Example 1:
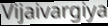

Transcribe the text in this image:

Vijaivargiya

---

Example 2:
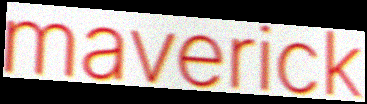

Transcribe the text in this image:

maverick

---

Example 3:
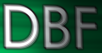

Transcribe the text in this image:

DBF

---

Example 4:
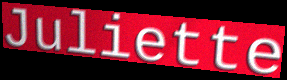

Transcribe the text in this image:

Juliette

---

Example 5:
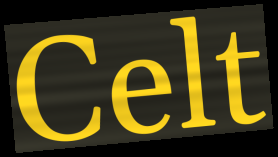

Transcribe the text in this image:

Celt